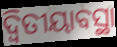
ଦ୍ବିତୀୟାବସ୍ଥା